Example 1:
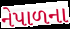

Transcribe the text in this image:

નેપાળના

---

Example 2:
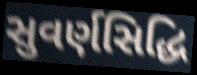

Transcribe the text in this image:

સુવર્ણસિદ્ધિ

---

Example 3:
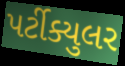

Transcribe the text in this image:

પર્ટીક્યુલર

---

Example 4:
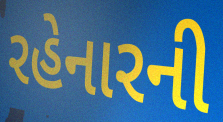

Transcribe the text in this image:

રહેનારની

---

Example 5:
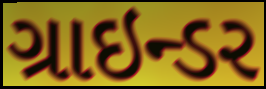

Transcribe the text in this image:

ગ્રાઇન્ડર